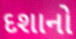
દશાનો